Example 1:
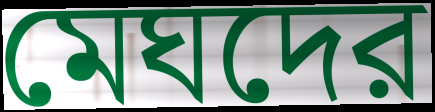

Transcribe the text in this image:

মেঘদের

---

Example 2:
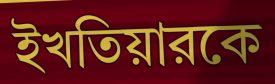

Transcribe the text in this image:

ইখতিয়ারকে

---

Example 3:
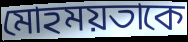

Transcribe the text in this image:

মোহময়তাকে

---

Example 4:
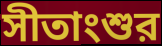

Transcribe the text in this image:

সীতাংশুর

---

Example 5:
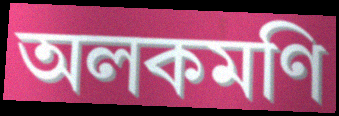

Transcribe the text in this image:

অলকমণি